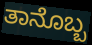
ತಾನೊಬ್ಬ